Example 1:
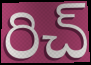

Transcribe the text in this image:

రిచ్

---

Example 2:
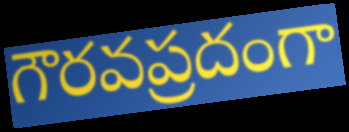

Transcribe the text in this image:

గౌరవప్రదంగా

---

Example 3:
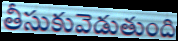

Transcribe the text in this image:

తీసుకువెడుతుంది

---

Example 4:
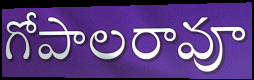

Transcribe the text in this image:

గోపాలరావూ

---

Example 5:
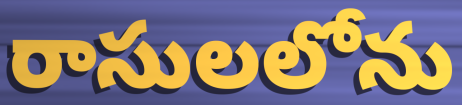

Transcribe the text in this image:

రాసులలోను